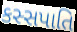
કસ્સપાતિ